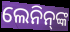
ଲେନିନ୍‌ଙ୍କ